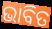
ଭାବିତ